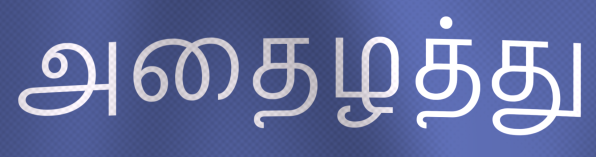
அதைழத்து